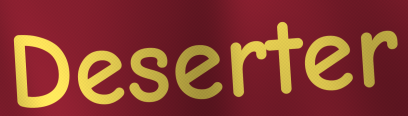
Deserter